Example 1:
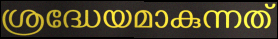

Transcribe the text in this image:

ശ്രദ്ധേയമാകുന്നത്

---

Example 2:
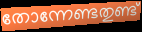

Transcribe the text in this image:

തോന്നേണ്ടതുണ്ട്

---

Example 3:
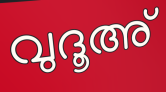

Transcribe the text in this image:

വുദൂഅ്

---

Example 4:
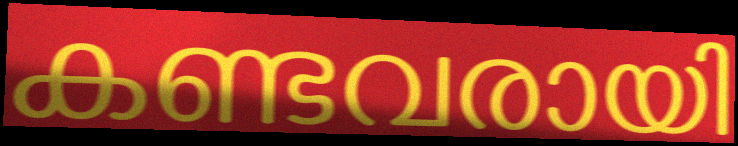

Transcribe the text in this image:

കണ്ടവരായി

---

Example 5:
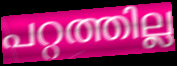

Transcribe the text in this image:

പറ്റത്തില്ല